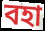
বহা